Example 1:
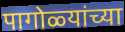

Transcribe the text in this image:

पागोळ्यांच्या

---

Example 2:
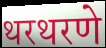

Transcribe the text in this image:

थरथरणे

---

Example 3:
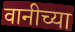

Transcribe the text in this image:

वानीच्या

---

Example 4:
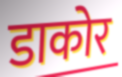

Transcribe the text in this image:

डाकोर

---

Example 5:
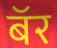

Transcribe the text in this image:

बॅर